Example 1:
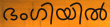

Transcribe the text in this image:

ഭംഗിയിൽ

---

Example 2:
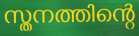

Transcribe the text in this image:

സ്തനത്തിന്റെ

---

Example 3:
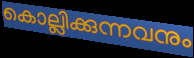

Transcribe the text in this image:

കൊല്ലിക്കുന്നവനും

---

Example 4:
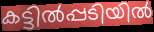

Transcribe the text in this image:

കട്ടിൽപ്പടിയിൽ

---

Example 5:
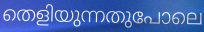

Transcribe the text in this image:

തെളിയുന്നതുപോലെ